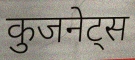
कुजनेट्स